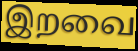
இறவை